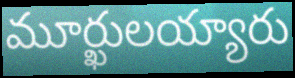
మూర్ఖులయ్యారు